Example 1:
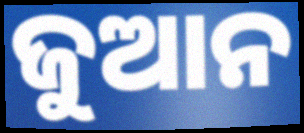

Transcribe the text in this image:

ଜୁଆନ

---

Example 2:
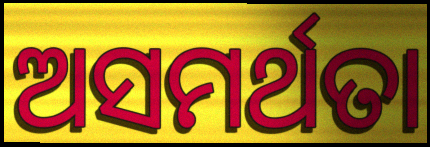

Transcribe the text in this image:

ଅସମର୍ଥତା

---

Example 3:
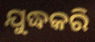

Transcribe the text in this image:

ଯୁଦ୍ଧକରି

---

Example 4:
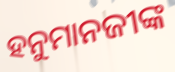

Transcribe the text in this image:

ହନୁମାନଜୀଙ୍କ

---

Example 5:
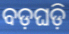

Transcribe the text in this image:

ବଡ଼ଘଡ଼ି